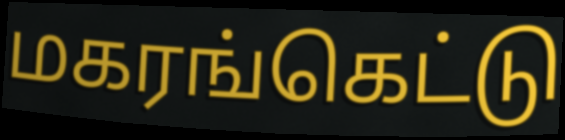
மகரங்கெட்டு